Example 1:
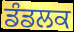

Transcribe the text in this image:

ਡੰਡਲਕ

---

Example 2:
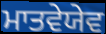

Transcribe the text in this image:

ਮਾਤਵੇਯੇਵ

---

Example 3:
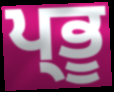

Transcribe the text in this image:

ਪ੍ਭੂ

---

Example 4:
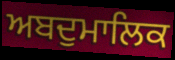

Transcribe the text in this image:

ਅਬਦੁਮਾਲਿਕ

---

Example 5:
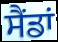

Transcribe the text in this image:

ਸੈਂਡਾਂ